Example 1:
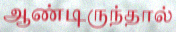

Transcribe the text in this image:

ஆண்டிருந்தால்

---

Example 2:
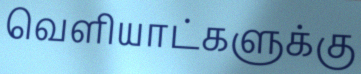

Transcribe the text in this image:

வெளியாட்களுக்கு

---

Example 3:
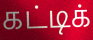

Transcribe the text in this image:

கட்டிக்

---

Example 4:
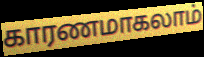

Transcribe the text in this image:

காரணமாகலாம்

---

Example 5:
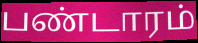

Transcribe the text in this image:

பண்டாரம்